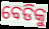
ବେଡିକୁ